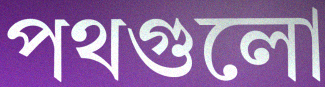
পথগুলো